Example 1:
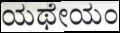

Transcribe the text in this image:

ಯಥೇಯಂ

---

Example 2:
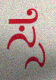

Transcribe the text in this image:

ಸ್ಸೆ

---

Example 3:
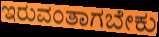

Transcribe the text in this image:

ಇರುವಂತಾಗಬೇಕು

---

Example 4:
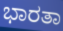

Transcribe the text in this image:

ಭಾರತಾ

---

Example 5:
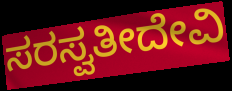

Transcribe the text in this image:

ಸರಸ್ವತೀದೇವಿ